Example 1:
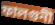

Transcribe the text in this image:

ফালগুনী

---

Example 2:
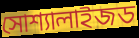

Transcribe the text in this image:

সোশ্যালাইজড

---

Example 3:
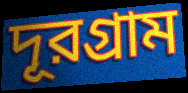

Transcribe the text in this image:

দূরগ্রাম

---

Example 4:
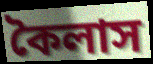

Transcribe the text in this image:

কৈলাস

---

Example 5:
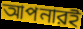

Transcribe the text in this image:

আপনারই